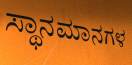
ಸ್ಥಾನಮಾನಗಳ